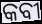
କବୀ